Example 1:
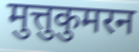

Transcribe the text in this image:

मुत्तुकुमरन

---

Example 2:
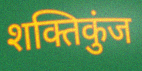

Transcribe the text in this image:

शक्तिकुंज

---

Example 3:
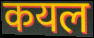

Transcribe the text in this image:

कयल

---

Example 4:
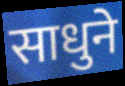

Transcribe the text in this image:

साधुने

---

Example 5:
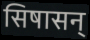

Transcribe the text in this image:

सिषासन्